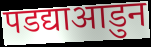
पडद्याआडुन